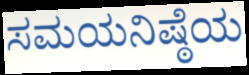
ಸಮಯನಿಷ್ಠೆಯ